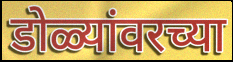
डोळ्यांवरच्या